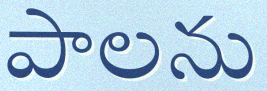
పాలను